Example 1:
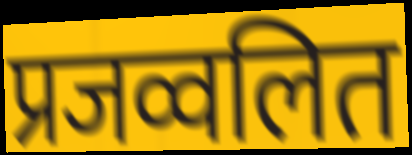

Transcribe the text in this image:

प्रजव्वलित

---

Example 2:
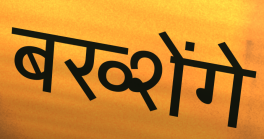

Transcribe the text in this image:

बख्शेंगे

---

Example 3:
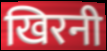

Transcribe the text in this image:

खिरनी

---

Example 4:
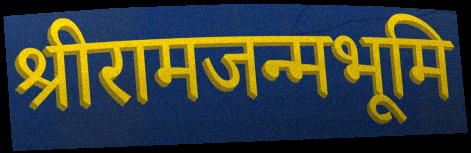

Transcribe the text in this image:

श्रीरामजन्मभूमि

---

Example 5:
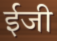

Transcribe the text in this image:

ईजी